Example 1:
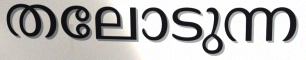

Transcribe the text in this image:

തലോടുന്ന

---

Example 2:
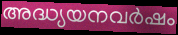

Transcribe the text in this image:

അദ്ധ്യയനവർഷം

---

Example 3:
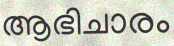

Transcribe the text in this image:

ആഭിചാരം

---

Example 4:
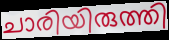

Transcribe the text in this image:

ചാരിയിരുത്തി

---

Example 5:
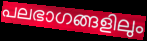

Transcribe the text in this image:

പലഭാഗങ്ങളിലും